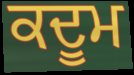
ਕਦੂਮ